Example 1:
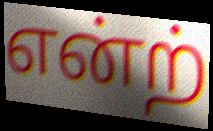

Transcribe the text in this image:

என்ற்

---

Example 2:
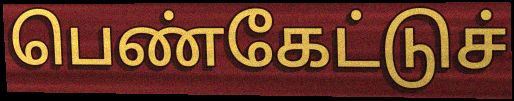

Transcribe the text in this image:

பெண்கேட்டுச்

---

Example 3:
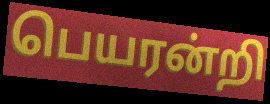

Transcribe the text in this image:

பெயரன்றி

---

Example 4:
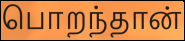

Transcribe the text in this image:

பொறந்தான்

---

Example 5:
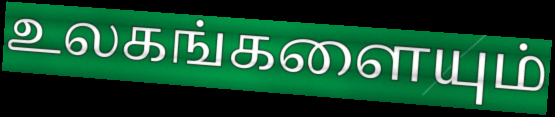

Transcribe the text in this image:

உலகங்களையும்